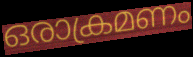
ഒരാക്രമണം